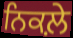
ਨਿਕਲ਼ੇ